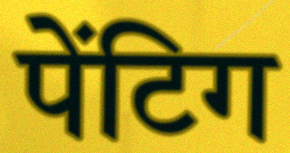
पेंटिग